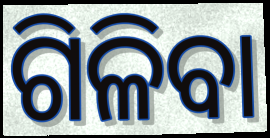
ଗିଳିବା